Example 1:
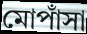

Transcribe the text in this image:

মোপাঁসা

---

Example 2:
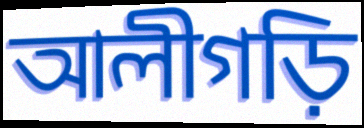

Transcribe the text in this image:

আলীগড়ি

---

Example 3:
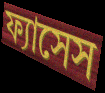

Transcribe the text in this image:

ফ্যাসেস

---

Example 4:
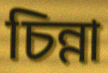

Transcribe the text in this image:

চিন্না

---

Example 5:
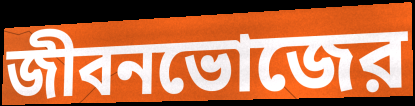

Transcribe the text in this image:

জীবনভোজের